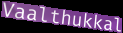
Vaalthukkal